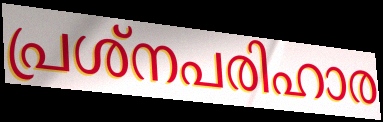
പ്രശ്നപരിഹാര